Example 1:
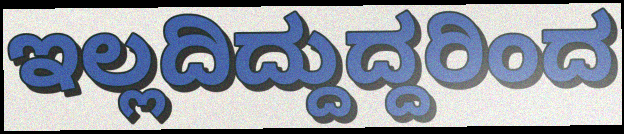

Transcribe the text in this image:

ಇಲ್ಲದಿದ್ದುದ್ದರಿಂದ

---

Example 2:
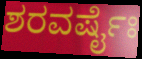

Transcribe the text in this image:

ಶರವರ್ಷೈಃ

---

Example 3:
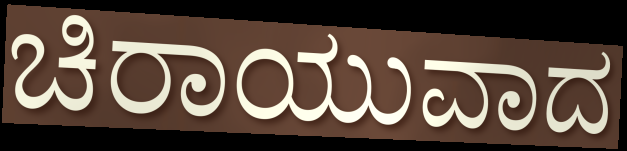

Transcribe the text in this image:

ಚಿರಾಯುವಾದ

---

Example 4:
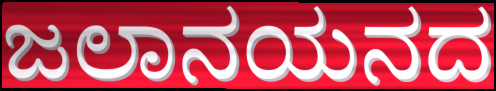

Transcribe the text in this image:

ಜಲಾನಯನದ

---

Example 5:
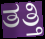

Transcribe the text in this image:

ತತ್ತಿ